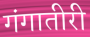
गंगातीरी